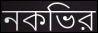
নকভির